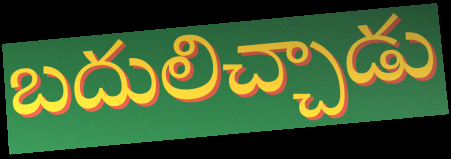
బదులిచ్చాడు